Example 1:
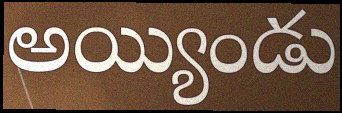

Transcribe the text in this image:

అయ్యిండు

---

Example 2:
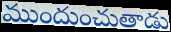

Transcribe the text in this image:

ముందుంచుతాడు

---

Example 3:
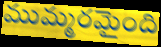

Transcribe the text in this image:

ముమ్మరమైంది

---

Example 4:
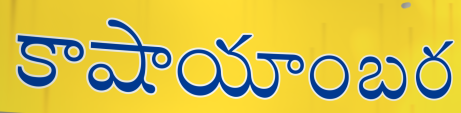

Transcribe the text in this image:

కాషాయాంబర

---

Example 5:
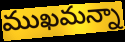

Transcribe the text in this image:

ముఖమన్నా